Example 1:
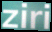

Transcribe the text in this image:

ziri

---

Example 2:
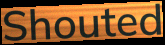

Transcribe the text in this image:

Shouted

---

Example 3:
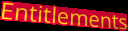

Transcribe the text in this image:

Entitlements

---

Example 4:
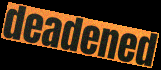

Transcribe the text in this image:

deadened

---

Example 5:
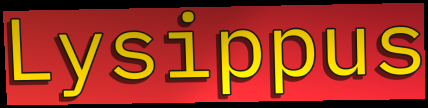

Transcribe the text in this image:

Lysippus